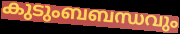
കുടുംബബന്ധവും